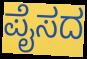
ಪೈಸದ